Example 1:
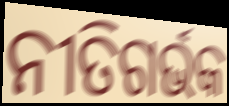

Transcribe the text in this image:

ନୀତିଗର୍ଭକ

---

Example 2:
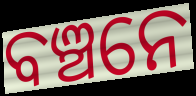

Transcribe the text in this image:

ବଞ୍ଚନେ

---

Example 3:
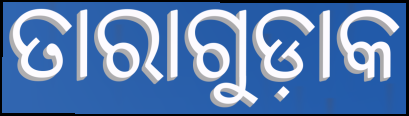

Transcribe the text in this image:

ତାରାଗୁଡ଼ାକ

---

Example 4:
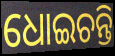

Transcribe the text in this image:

ଧୋଇଚନ୍ତି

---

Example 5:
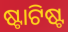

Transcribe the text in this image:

ଷ୍ଟାଟିଷ୍ଟ